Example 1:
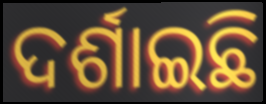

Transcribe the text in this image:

ଦର୍ଶାଇଛି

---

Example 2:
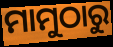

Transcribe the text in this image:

ମାମୁଠାରୁ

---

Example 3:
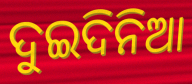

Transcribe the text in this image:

ଦୁଇଦିନିଆ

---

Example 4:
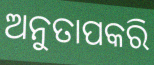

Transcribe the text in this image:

ଅନୁତାପକରି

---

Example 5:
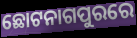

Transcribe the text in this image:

ଛୋଟନାଗପୁରରେ